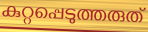
കുറ്റപ്പെടുത്തരുത്